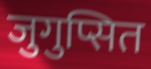
जुगुप्सित